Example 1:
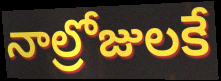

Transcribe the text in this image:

నాల్రోజులకే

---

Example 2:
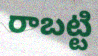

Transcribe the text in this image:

రాబట్టి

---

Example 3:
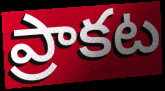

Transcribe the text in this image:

ప్రాకట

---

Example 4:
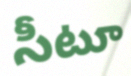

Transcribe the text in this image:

సీటూ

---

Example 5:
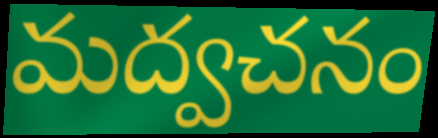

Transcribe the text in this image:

మద్వచనం